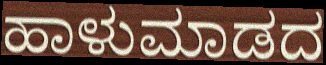
ಹಾಳುಮಾಡದ